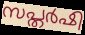
സപ്തർഷി